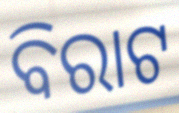
ବିରାଟ